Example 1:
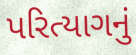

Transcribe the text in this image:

પરિત્યાગનું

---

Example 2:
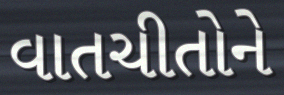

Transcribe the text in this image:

વાતચીતોને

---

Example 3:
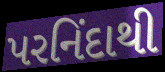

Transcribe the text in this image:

પરનિંદાથી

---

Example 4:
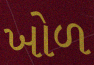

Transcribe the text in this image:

ખોળ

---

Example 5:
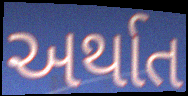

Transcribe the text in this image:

અર્થાત